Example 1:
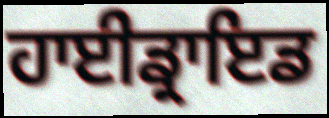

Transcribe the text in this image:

ਹਾਈਡ੍ਰਾਇਡ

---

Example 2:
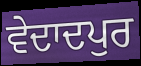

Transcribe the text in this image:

ਵੇਦਾਦਪੁਰ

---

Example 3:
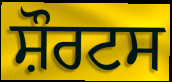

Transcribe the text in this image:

ਸ਼ੌਰਟਸ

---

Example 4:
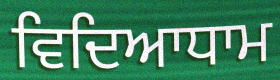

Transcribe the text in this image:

ਵਿਦਿਆਧਾਮ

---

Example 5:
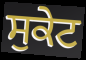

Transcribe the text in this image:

ਸੁਕੇਟ